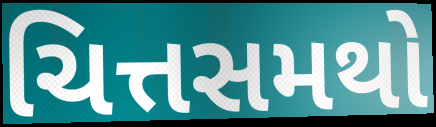
ચિત્તસમથો